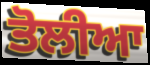
ਤੋਲੀਆ